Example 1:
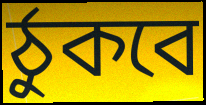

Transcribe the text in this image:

ঠুকবে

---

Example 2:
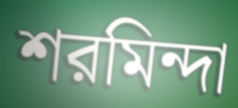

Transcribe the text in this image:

শরমিন্দা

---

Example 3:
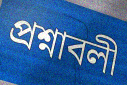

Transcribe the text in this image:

প্রশ্নাবলী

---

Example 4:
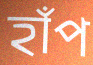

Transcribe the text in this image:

হাঁপ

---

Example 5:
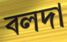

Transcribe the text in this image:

বলদা